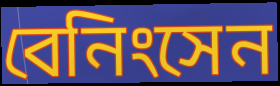
বেনিংসেন